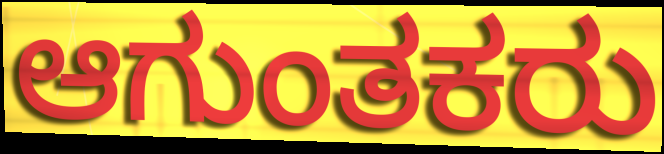
ಆಗುಂತಕರು